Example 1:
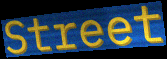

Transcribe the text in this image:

Street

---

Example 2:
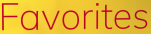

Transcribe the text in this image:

Favorites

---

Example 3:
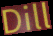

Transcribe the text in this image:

Dill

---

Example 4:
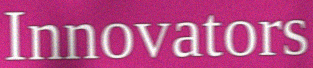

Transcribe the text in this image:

Innovators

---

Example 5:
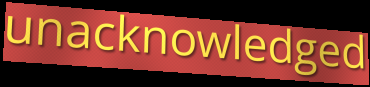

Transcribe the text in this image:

unacknowledged